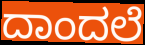
ದಾಂದಲೆ